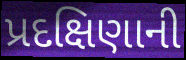
પ્રદક્ષિણાની